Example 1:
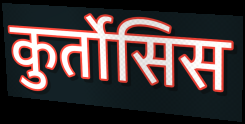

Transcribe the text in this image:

कुर्तोसिस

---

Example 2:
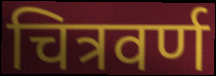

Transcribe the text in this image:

चित्रवर्ण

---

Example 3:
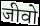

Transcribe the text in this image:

जीवो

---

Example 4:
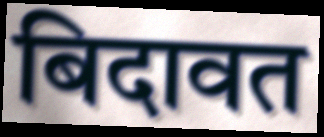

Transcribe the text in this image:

बिदावत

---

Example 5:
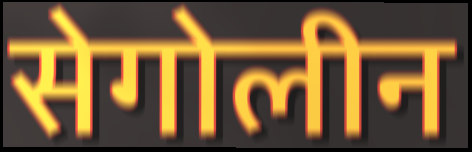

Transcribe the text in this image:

सेगोलीन